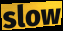
slow